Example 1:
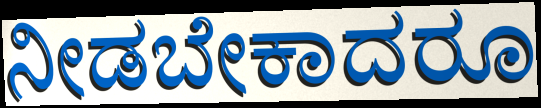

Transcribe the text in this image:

ನೀಡಬೇಕಾದರೂ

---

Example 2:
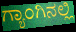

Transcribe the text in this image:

ಗ್ಯಾಂಗಿನಲ್ಲಿ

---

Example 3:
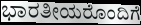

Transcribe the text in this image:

ಭಾರತೀಯರೊಂದಿಗೆ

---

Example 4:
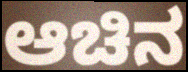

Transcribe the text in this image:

ಆಚಿನ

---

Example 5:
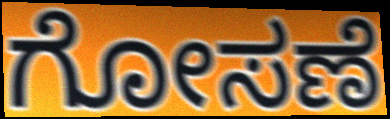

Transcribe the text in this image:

ಗೋಸಣೆ